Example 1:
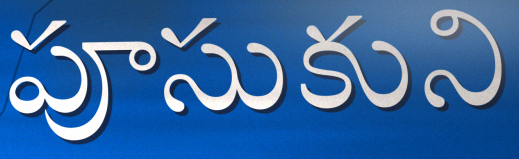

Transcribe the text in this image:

పూసుకుని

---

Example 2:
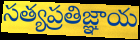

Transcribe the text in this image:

సత్యప్రతిజ్ఞాయ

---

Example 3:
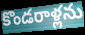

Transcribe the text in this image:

కొండరాళ్లను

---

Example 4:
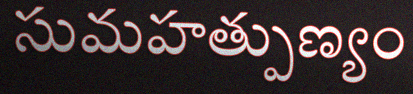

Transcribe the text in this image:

సుమహత్పుణ్యం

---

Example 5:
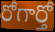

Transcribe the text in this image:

రోగార్తో